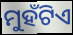
ମୁହଁଟିଏ